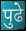
पुढे